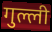
गुल्ली